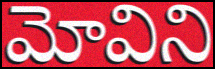
మోవిని